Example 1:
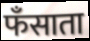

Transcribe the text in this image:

फँसाता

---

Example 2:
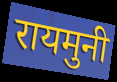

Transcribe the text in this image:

रायमुनी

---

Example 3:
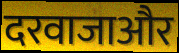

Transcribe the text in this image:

दरवाजाऔर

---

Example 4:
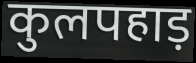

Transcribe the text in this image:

कुलपहाड़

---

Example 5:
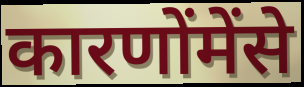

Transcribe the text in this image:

कारणोंमेंसे